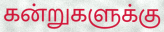
கன்றுகளுக்கு